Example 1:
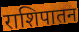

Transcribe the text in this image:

राशिपातन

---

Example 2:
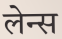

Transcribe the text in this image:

लेन्स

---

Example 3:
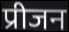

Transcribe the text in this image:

प्रीजन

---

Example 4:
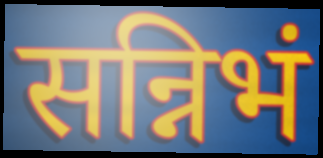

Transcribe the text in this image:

सन्निभं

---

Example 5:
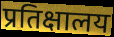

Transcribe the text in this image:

प्रतिक्षालय